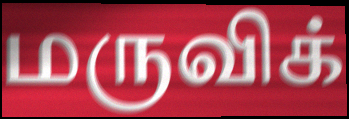
மருவிக்